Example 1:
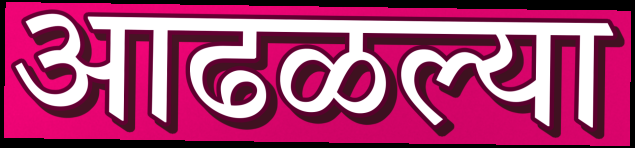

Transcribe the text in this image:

आढळल्या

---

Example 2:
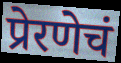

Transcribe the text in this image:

प्रेरणेचं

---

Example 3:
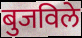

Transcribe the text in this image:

बुजविले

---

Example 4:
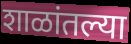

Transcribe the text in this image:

शाळांतल्या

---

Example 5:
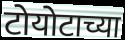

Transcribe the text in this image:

टोयोटाच्या